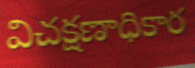
విచక్షణాధికార